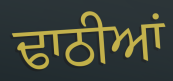
ਢਾਠੀਆਂ